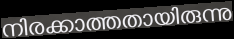
നിരക്കാത്തതായിരുന്നു